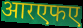
आरएफए